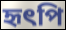
হৃৎপি